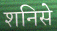
शनिसे